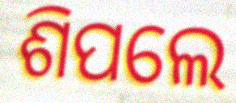
ଶିପଲେ